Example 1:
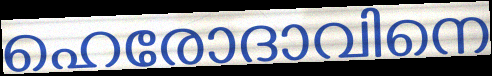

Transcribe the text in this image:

ഹെരോദാവിനെ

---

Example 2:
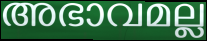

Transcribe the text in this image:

അഭാവമല്ല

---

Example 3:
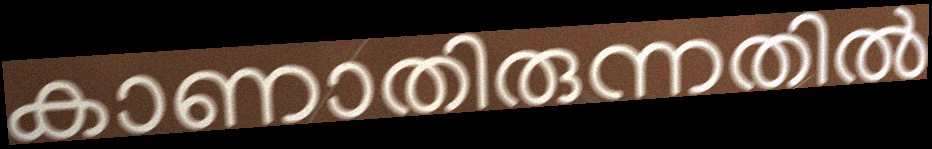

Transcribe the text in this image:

കാണാതിരുന്നതിൽ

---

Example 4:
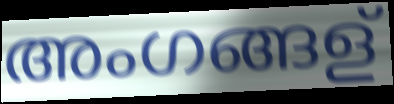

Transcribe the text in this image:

അംഗങ്ങള്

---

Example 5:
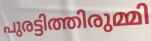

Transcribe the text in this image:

പുരട്ടിത്തിരുമ്മി